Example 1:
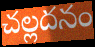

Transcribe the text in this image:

చల్లదనం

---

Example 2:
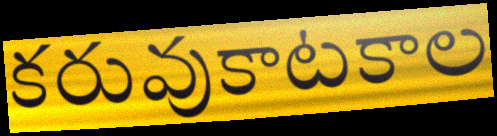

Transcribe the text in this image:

కరువుకాటకాల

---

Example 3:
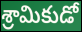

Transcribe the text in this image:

శ్రామికుడో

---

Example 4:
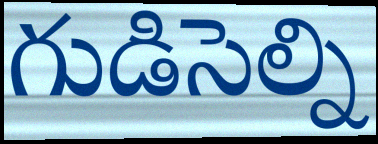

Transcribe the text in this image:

గుడిసెల్ని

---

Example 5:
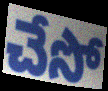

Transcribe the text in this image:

చేసో